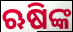
ଋଷିଙ୍କ